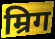
म्रिग